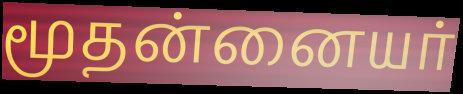
மூதன்னையர்